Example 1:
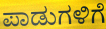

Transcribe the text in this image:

ಪಾಡುಗಳಿಗೆ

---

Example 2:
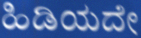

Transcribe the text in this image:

ಹಿಡಿಯದೇ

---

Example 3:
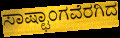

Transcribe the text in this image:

ಸಾಷ್ಟಾಂಗವೆರಗಿದ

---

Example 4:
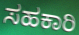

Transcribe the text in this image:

ಸಹಕಾರಿ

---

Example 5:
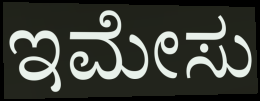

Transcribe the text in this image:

ಇಮೇಸು